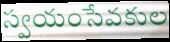
స్వయంసేవకుల